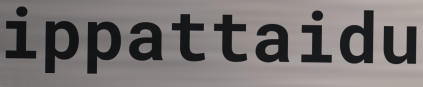
ippattaidu